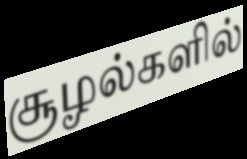
சூழல்களில்